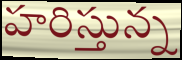
హరిస్తున్న